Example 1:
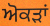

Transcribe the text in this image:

ਅੋਕੜਾਂ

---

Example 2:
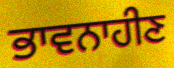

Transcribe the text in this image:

ਭਾਵਨਾਹੀਣ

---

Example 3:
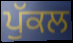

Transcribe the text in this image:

ਪੁੱਕਲ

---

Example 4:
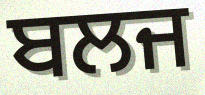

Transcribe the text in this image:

ਬਲਜ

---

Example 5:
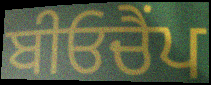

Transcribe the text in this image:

ਬੀਓਚੈਂਪ